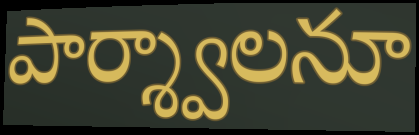
పార్శ్వాలనూ